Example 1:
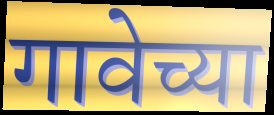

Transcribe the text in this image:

गावेच्या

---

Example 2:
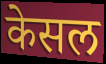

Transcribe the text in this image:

केसल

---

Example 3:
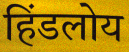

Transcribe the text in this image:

हिंडलोय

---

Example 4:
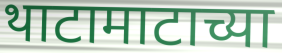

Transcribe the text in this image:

थाटामाटाच्या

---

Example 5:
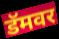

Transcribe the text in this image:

डॅमवर